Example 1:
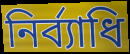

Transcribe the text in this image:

নির্ব্যাধি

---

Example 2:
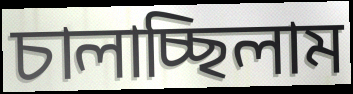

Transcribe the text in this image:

চালাচ্ছিলাম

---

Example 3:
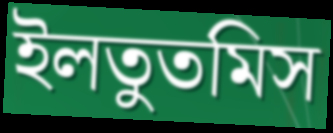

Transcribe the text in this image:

ইলতুতমিস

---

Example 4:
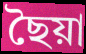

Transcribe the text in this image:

ছৈয়া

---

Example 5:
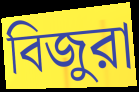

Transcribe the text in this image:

বিজুরা